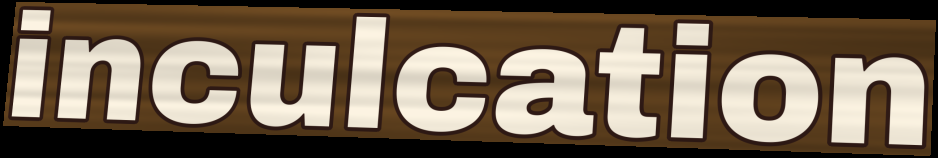
inculcation